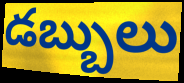
డబ్బులు